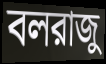
বলরাজু